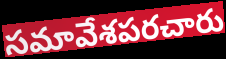
సమావేశపరచారు